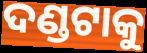
ଦଣ୍ଡଟାକୁ